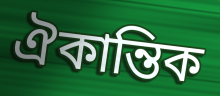
ঐকান্তিক